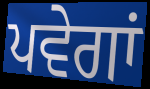
ਪਵੇਗਾਂ